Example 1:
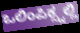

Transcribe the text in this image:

ಒಲಿಂಪಿಕ್ಸ್ನಲ್ಲಿ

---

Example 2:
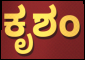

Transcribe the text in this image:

ಕೃಶಂ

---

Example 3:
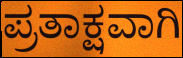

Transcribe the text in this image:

ಪ್ರತಾಕ್ಷವಾಗಿ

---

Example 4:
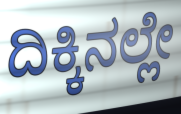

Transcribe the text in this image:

ದಿಕ್ಕಿನಲ್ಲೇ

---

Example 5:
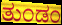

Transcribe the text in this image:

ತುಂಡಂ